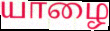
யாழை